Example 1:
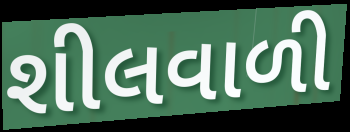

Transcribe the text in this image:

શીલવાળી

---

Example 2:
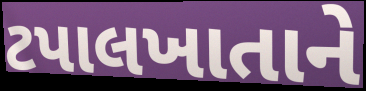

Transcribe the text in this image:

ટપાલખાતાને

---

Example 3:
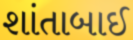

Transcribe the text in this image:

શાંતાબાઈ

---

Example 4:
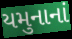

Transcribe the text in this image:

યમુનાનાં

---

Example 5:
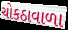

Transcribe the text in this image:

ચોકઠાવાળા